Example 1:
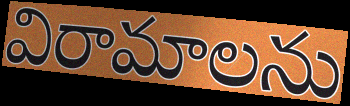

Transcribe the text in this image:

విరామాలను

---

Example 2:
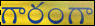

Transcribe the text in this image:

గారంగా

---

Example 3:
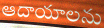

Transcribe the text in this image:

ఆదాయాలను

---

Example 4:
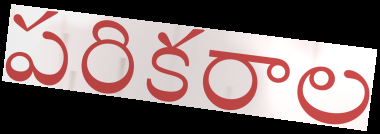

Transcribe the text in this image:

పరికరాల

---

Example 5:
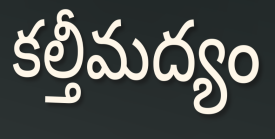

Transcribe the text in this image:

కల్తీమద్యం